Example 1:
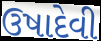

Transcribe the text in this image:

ઉષાદેવી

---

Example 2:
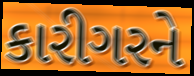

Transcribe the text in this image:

કારીગરને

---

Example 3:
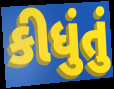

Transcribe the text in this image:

કીધુંતું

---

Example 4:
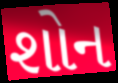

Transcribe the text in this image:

શોન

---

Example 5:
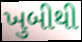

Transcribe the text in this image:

ખુબીથી